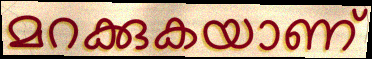
മറക്കുകയാണ്